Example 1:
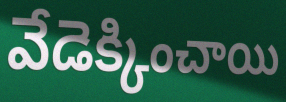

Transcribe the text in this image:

వేడెక్కించాయి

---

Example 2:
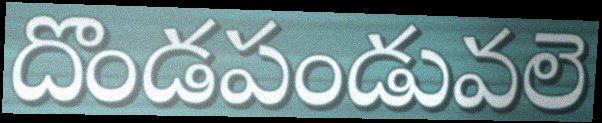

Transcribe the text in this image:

దొండపండువలె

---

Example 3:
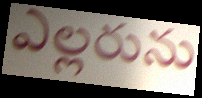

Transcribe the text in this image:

ఎల్లరును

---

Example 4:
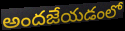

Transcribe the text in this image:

అందజేయడంలో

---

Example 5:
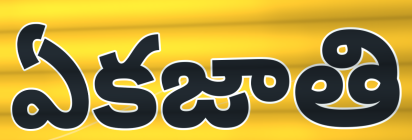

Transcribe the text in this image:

ఏకజాతి